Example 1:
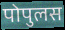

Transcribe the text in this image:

पोपुलस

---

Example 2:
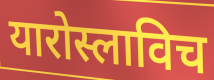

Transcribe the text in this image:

यारोस्लाविच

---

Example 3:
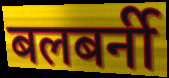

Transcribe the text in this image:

बलबर्नी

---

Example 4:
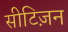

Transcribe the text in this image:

सीटिज़न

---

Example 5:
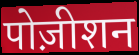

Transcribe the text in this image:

पोज़ीशन